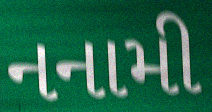
નનામી